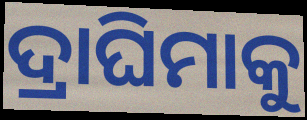
ଦ୍ରାଘିମାକୁ